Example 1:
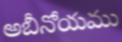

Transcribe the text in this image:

అబీనోయము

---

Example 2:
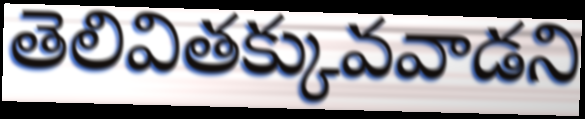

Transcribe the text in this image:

తెలివితక్కువవాడని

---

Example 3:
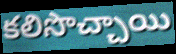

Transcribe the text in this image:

కలిసొచ్చాయి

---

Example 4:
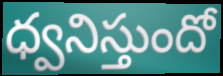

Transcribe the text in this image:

ధ్వనిస్తుందో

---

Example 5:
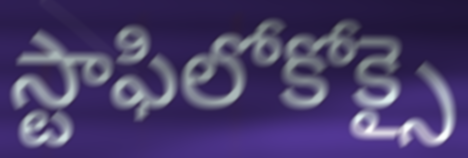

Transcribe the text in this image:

స్టాఫిలోకోక్సై